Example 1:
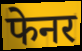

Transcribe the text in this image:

फेनर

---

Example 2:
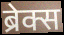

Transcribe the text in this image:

ब्रेक्स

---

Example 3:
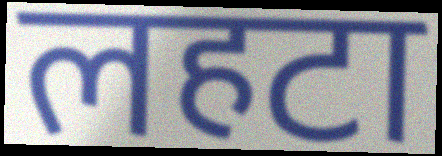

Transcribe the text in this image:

लहटा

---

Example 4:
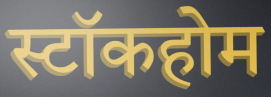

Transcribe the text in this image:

स्टॉकहोम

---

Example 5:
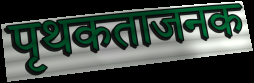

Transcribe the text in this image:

पृथकताजनक